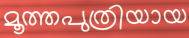
മൂത്തപുത്രിയായ